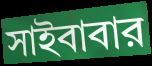
সাইবাবার